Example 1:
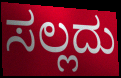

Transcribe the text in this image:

ಸಲ್ಲದು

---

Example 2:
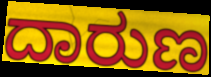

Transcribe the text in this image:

ದಾರುಣ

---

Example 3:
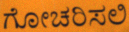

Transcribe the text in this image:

ಗೋಚರಿಸಲಿ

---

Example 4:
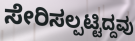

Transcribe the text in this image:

ಸೇರಿಸಲ್ಪಟ್ಟಿದ್ದವು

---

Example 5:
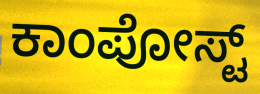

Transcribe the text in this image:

ಕಾಂಪೋಸ್ಟ್